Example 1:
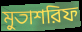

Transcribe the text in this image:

মুতাশরিফ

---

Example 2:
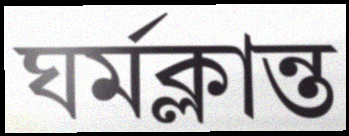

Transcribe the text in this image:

ঘর্মক্লান্ত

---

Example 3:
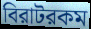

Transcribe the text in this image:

বিরাটরকম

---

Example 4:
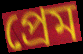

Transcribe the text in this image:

প্রেম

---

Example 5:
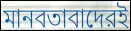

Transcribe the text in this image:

মানবতাবাদেরই